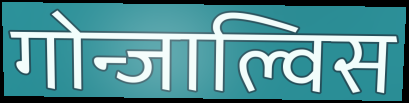
गोन्जाल्विस